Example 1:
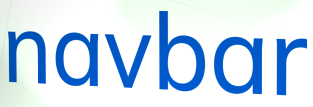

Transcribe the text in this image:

navbar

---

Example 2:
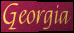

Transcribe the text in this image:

Georgia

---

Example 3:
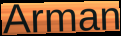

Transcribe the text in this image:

Arman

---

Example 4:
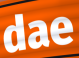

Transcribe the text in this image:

dae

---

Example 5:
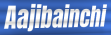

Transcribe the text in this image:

Aajibainchi